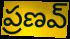
ప్రణవ్